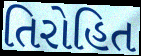
તિરોહિત